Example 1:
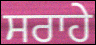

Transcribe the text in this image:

ਸਰਾਹੇ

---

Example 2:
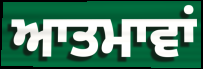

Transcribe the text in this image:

ਆਤਮਾਵਾਂ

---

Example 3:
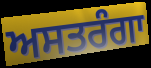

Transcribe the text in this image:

ਅਸਤਰੰਗਾ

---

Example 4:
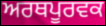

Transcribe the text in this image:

ਅਰਥਪੂਰਵਕ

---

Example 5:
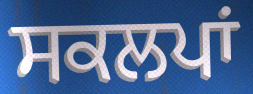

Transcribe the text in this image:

ਸਕਲਪਾਂ